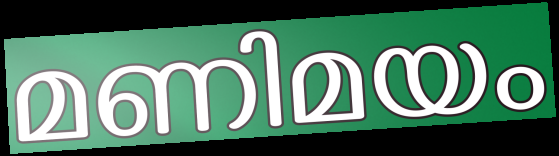
മണിമയം